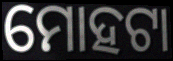
ମୋହଟା